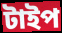
টাইপ